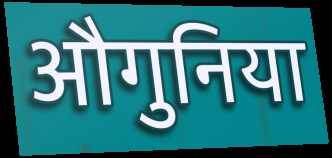
औगुनिया